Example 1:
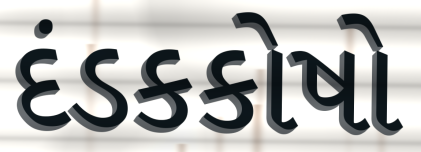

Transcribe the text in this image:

દંડકકોષો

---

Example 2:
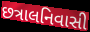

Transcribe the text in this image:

છત્રાલનિવાસી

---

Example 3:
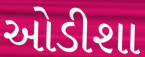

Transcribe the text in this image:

ઓડીશા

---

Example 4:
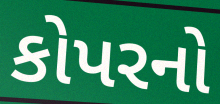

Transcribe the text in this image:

કોપરનો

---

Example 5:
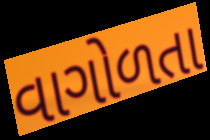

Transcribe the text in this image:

વાગોળતા